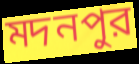
মদনপুর